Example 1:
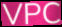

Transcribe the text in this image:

VPC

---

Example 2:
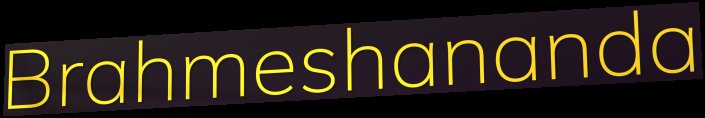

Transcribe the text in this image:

Brahmeshananda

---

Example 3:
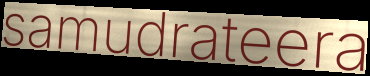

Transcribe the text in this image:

samudrateera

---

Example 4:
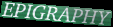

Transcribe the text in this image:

EPIGRAPHY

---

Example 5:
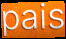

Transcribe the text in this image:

pais